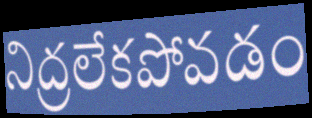
నిద్రలేకపోవడం